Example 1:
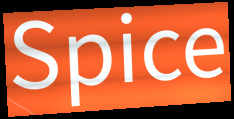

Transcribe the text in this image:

Spice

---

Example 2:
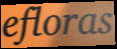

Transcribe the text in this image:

efloras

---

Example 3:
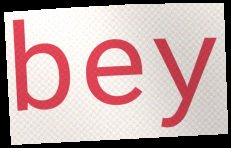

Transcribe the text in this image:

bey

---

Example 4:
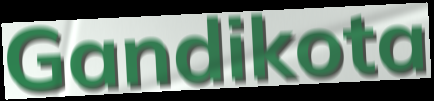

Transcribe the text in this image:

Gandikota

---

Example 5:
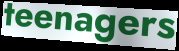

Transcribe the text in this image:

teenagers